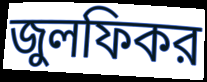
জুলফিকর